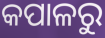
କପାଳରୁ